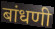
बांधणी